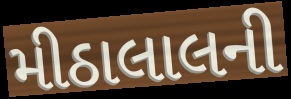
મીઠાલાલની